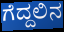
ಗೆದ್ದಲಿನ